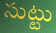
సుట్టు